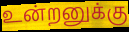
உன்றனுக்கு